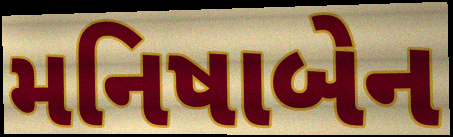
મનિષાબેન